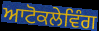
ਆਟੋਕਲੇਵਿੰਗ